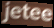
jetee